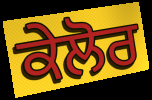
ਕੇਲੋਰ